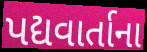
પદ્યવાર્તાના